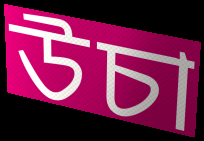
উচা